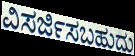
ವಿಸರ್ಜಿಸಬಹುದು